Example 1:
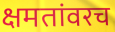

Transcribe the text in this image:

क्षमतांवरच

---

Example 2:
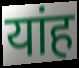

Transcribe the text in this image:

यांह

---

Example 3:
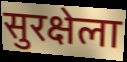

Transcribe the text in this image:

सुरक्षेला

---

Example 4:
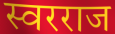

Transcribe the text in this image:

स्वरराज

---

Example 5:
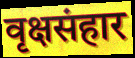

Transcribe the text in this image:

वृक्षसंहार